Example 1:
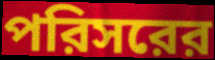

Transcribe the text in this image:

পরিসরের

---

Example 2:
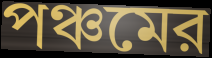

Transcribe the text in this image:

পঞ্চমের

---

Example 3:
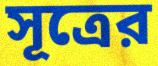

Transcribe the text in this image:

সূত্রের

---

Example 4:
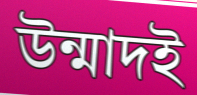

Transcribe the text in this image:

উন্মাদই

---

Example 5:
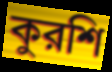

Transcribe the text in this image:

কুরশি